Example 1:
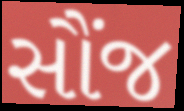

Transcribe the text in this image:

સૌંજ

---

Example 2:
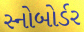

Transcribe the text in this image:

સ્નોબોર્ડર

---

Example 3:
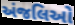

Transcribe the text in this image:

અંજલિઓ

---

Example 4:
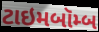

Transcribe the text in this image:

ટાઇમબૉમ્બ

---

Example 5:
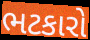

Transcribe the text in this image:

ભટકારો